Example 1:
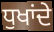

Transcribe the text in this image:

ਧੁਖਾਂਦੇ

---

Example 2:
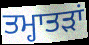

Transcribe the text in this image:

ਤਮ੍ਹਾਤੜਾਂ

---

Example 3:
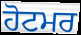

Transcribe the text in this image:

ਹੋਟਮਰ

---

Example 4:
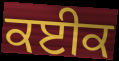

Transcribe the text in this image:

ਕਈਕ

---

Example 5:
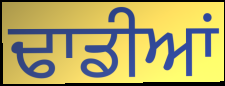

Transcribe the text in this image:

ਢਾਡੀਆਂ